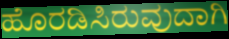
ಹೊರಡಿಸಿರುವುದಾಗಿ